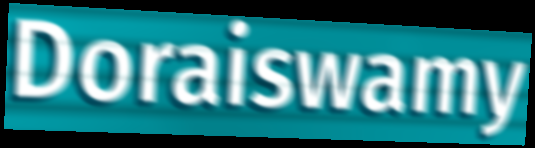
Doraiswamy